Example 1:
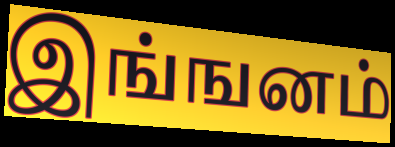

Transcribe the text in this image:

இங்ஙனம்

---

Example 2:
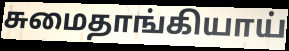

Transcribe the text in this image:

சுமைதாங்கியாய்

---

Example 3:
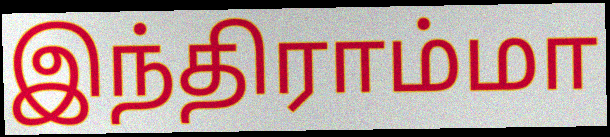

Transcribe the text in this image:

இந்திராம்மா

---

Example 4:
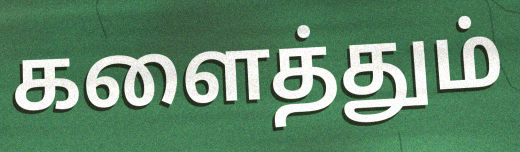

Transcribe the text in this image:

களைத்தும்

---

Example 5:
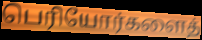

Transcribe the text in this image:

பெரியோர்களைத்